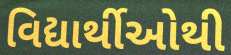
વિદ્યાર્થીઓથી